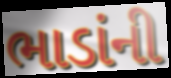
ભાડાંની